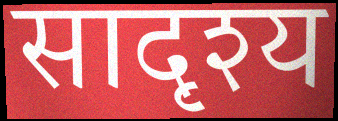
सादृश्य